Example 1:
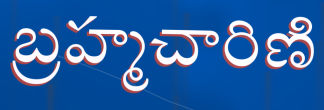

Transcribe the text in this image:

బ్రహ్మచారిణి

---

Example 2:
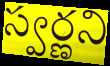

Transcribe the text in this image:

స్వర్ణని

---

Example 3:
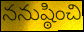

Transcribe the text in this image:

ననుష్ఠించి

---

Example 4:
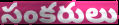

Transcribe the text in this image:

సంకరులు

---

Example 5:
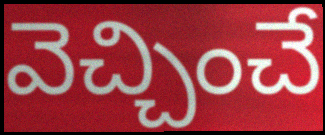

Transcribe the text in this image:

వెచ్చించే